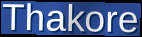
Thakore